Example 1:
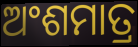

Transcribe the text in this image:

ଅଂଶମାତ୍ର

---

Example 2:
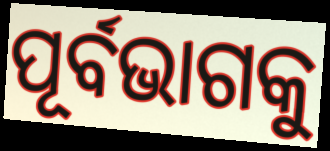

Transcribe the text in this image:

ପୂର୍ବଭାଗକୁ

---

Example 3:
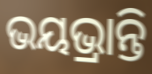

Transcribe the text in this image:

ଭୟଭ୍ରାନ୍ତି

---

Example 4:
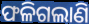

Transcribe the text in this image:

ଫଳିଗଲାଣି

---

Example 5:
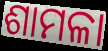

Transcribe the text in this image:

ଶାମଳା